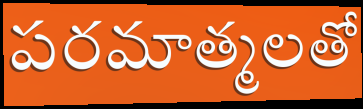
పరమాత్మలతో